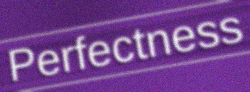
Perfectness